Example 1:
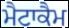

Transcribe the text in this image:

ਮੈਟਾਕੈਮ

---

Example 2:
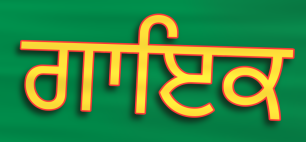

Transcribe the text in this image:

ਗਾਇਕ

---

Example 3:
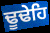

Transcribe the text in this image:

ਢੂਢੇਹਿ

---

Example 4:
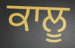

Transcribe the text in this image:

ਕਾਲੂ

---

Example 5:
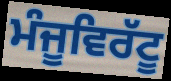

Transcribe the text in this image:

ਮੰਜੂਵਿਰੱਟੂ